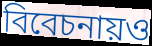
বিবেচনায়ও